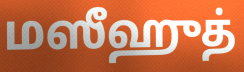
மஸீஹுத்